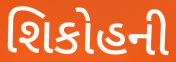
શિકોહની